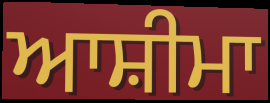
ਆਸ਼ੀਮਾ